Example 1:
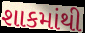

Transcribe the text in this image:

શાકમાંથી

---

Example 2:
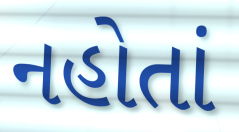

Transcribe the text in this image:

નહોતાં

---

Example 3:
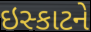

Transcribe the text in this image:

ઇસ્કાટને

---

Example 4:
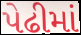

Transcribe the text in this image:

પેઢીમાં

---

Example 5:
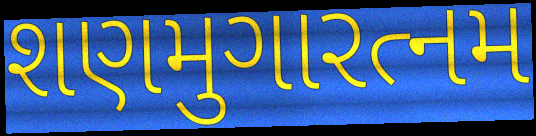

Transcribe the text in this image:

શણમુગારત્નમ